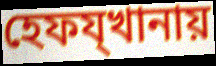
হেফয্খানায়